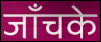
जाँचके